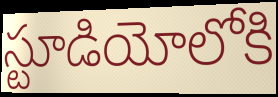
స్టూడియోలోకి